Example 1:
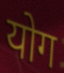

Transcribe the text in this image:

योग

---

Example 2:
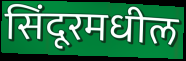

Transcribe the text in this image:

सिंदूरमधील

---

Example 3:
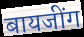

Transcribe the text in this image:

बायजींग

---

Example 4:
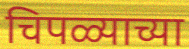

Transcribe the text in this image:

चिपळ्याच्या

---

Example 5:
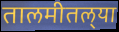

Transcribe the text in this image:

तालमीतल्या